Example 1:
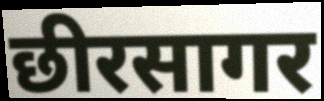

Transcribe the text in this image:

छीरसागर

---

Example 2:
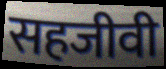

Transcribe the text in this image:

सहजीवी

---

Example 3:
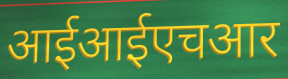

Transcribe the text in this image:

आईआईएचआर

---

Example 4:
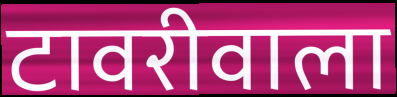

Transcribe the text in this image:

टावरीवाला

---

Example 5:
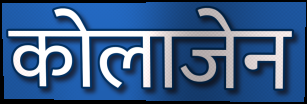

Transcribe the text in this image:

कोलाजेन